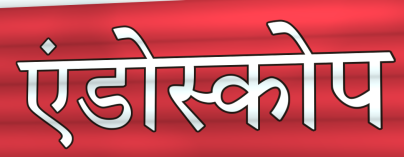
एंडोस्कोप